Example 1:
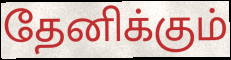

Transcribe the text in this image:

தேனிக்கும்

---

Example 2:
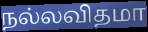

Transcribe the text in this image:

நல்லவிதமா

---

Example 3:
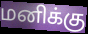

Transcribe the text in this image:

மனிக்கு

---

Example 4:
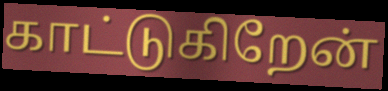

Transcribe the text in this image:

காட்டுகிறேன்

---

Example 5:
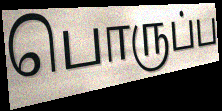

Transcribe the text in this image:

பொருப்ப